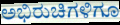
ಅಭಿರುಚಿಗಳಿಗೂ